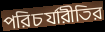
পরিচর্যারীতির